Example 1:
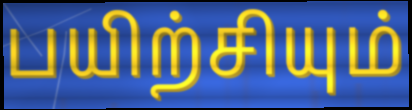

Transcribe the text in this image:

பயிற்சியும்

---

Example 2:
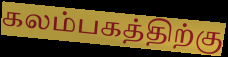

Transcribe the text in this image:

கலம்பகத்திற்கு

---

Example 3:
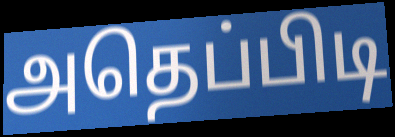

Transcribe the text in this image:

அதெப்பிடி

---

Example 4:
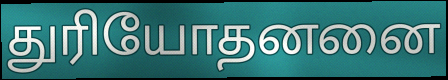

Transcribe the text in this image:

துரியோதனனை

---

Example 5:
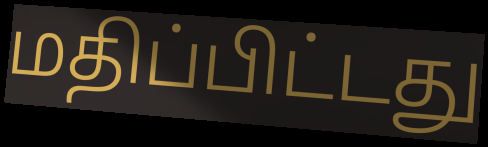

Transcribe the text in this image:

மதிப்பிட்டது